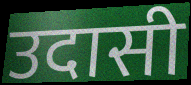
उदासी